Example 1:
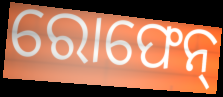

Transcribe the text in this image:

ରୋଫେନ୍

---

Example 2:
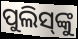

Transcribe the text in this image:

ପୁଲିସ୍‌ଙ୍କୁ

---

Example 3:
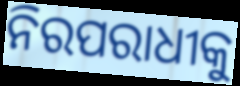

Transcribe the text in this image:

ନିରପରାଧୀକୁ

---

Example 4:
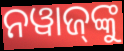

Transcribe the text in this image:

ନୱାଜ୍‍ଙ୍କୁ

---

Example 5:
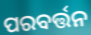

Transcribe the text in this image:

ପରବର୍ତ୍ତନ